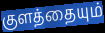
குளத்தையும்